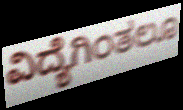
ವಿದ್ಯೆಗಿಂತಲೂ